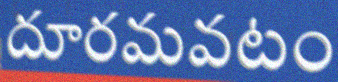
దూరమవటం